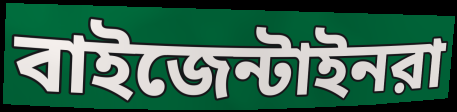
বাইজেন্টাইনরা